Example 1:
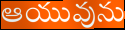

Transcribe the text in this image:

ఆయువును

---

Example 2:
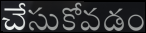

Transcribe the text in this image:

చేసుకోవడం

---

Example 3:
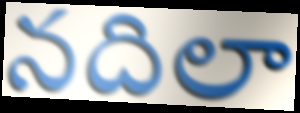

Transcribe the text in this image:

నదిలా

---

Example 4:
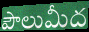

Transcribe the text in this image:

పౌలుమీద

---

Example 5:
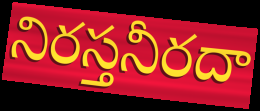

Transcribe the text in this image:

నిరస్తనీరదా